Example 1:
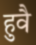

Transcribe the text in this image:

हुवै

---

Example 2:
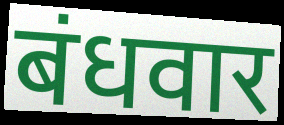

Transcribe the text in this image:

बंधवार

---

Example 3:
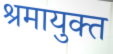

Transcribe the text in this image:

श्रमायुक्त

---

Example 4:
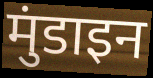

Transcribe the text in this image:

मुंडाइन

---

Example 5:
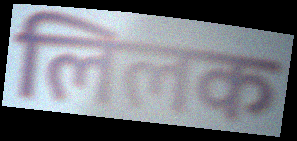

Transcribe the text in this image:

लिलक